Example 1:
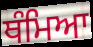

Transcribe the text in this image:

ਥੰਮਿਆ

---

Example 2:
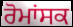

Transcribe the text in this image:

ਰੋਮਾਂਸਕ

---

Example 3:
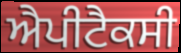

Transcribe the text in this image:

ਐਪੀਟੈਕਸੀ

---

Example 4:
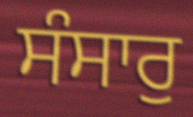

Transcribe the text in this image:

ਸੰਸਾਰੁ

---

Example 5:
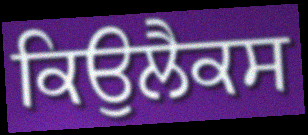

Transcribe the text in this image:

ਕਿਉਲੈਕਸ